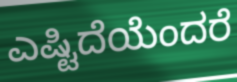
ಎಷ್ಟಿದೆಯೆಂದರೆ